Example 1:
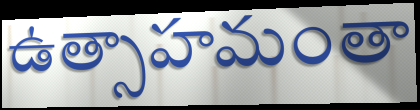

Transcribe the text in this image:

ఉత్సాహమంతా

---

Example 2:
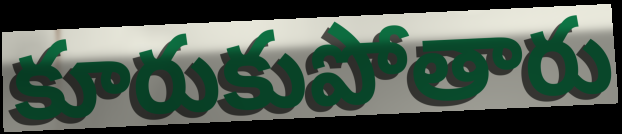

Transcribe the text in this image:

కూరుకుపోతారు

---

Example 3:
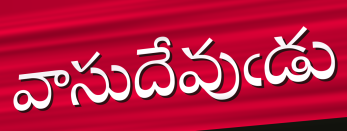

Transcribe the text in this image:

వాసుదేవుఁడు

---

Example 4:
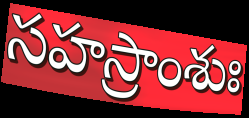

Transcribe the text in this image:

సహస్రాంశుః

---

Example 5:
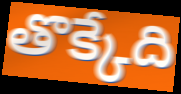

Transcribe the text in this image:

తొక్కేది